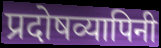
प्रदोषव्यापिनी